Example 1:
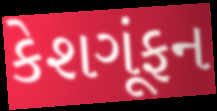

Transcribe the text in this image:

કેશગૂંફન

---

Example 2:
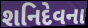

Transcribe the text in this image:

શનિદેવના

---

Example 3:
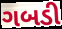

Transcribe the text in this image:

ગબડી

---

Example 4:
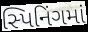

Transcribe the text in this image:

સ્પિનિંગમાં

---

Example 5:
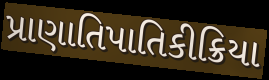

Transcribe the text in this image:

પ્રાણાતિપાતિકીક્રિયા